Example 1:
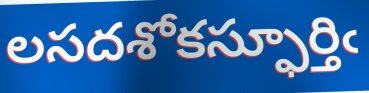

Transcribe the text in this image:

లసదశోకస్ఫూర్తిఁ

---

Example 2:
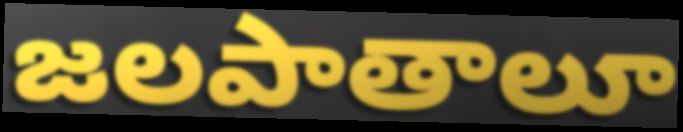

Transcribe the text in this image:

జలపాతాలూ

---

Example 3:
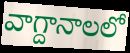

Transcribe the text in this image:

వాగ్దానాలలో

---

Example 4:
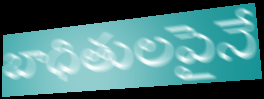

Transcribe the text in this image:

బాధితులపైనే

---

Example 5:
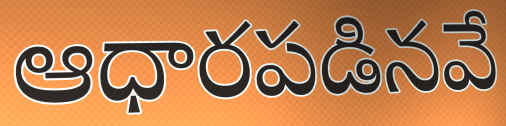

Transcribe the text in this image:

ఆధారపడినవే